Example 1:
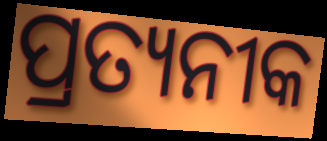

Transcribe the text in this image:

ପ୍ରତ୍ୟନୀକ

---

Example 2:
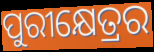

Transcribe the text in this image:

ପୁରୀକ୍ଷେତ୍ରର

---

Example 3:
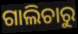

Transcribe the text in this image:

ଗାଲିଚାରୁ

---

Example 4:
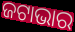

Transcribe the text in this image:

ଜଟାଭାର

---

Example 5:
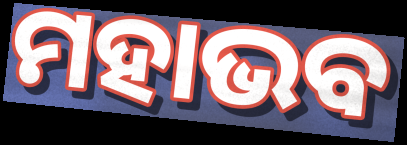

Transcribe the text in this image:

ମହାଭବ